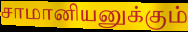
சாமானியனுக்கும்